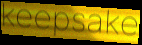
keepsake